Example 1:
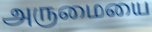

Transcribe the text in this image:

அருமையை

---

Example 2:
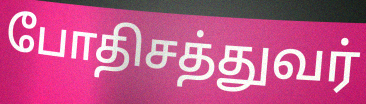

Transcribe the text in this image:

போதிசத்துவர்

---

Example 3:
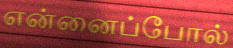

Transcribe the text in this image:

என்னைப்போல்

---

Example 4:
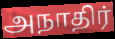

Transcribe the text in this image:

அநாதிர்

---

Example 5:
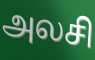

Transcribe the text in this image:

அலசி